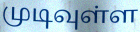
முடிவுள்ள